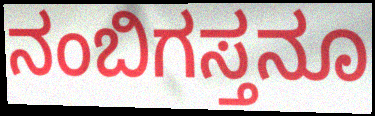
ನಂಬಿಗಸ್ತನೂ